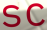
sc